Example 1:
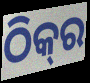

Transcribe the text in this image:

ଠିକ୍‍ର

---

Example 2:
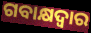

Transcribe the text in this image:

ଗବାକ୍ଷଦ୍ୱାର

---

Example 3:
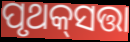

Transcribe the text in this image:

ପୃଥକ୍‌ସତ୍ତା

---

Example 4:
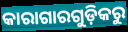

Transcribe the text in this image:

କାରାଗାରଗୁଡ଼ିକରୁ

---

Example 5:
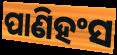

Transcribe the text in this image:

ପାଣିହଂସ